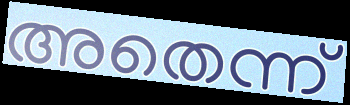
അതെന്ന്